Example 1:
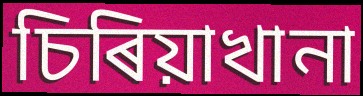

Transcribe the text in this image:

চিৰিয়াখানা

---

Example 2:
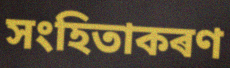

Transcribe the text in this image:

সংহিতাকৰণ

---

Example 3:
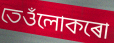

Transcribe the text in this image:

তেওঁলোকৰো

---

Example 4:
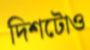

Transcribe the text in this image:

দিশটোও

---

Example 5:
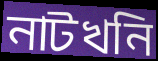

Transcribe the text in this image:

নাটখনি